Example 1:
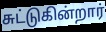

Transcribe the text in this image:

சுட்டுகின்றார்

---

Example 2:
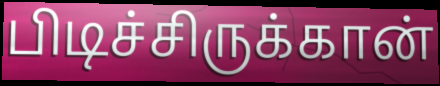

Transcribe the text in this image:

பிடிச்சிருக்கான்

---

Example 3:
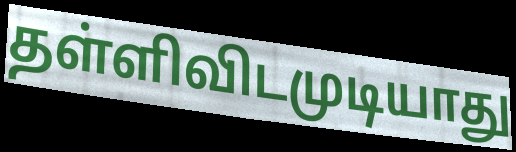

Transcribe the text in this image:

தள்ளிவிடமுடியாது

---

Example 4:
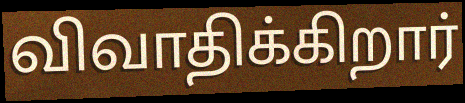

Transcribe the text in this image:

விவாதிக்கிறார்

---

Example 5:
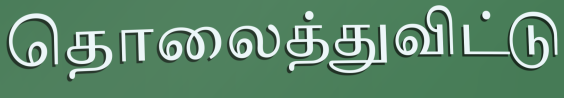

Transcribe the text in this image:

தொலைத்துவிட்டு